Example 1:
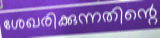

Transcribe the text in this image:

ശേഖരിക്കുന്നതിന്റെ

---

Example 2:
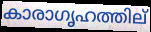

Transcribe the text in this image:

കാരാഗൃഹത്തില്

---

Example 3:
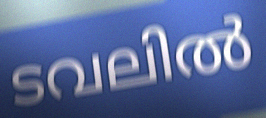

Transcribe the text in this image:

ടവലിൽ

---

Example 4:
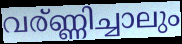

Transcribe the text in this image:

വര്ണ്ണിച്ചാലും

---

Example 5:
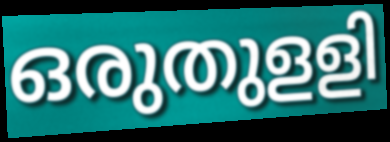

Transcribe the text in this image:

ഒരുതുളളി